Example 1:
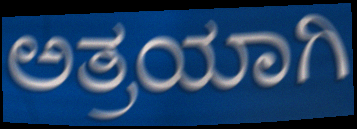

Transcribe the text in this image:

ಅತ್ರಯಾಗಿ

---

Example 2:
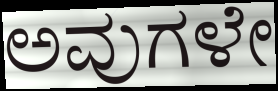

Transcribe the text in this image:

ಅವುಗಳೇ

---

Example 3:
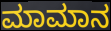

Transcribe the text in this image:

ಮಾಮಾನ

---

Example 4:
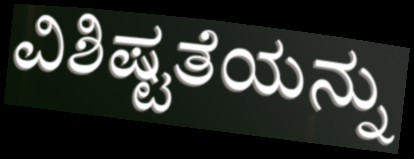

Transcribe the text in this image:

ವಿಶಿಷ್ಟತೆಯನ್ನು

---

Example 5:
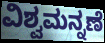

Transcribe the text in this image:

ವಿಶ್ವಮನ್ನಣೆ